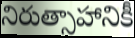
నిరుత్సాహానికీ